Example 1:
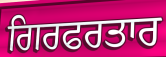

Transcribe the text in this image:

ਗਿਰਫਰਤਾਰ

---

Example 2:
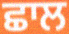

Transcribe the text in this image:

ਛਾਲ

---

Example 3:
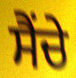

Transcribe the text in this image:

ਸੈਂਚੇ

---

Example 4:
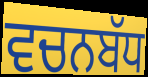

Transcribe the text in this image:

ਵਚਨਬੱਧ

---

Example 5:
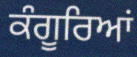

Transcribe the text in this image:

ਕੰਗੂਰਿਆਂ